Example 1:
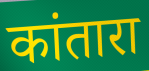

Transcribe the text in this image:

कांतारा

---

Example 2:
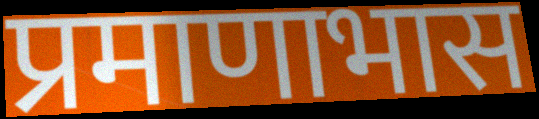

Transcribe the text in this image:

प्रमाणाभास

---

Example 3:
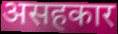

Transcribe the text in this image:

असहकार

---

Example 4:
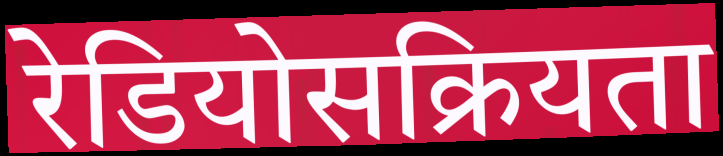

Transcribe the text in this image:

रेडियोसक्रियता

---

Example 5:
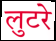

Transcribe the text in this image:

लुटरे